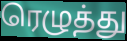
ரெழுத்து